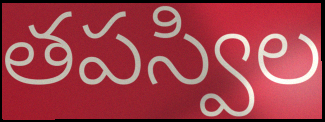
తపస్విల